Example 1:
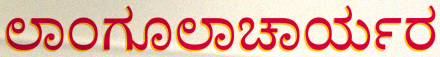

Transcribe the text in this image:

ಲಾಂಗೂಲಾಚಾರ್ಯರ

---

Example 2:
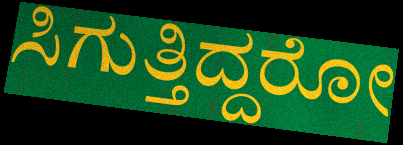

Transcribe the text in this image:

ಸಿಗುತ್ತಿದ್ದರೋ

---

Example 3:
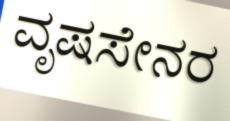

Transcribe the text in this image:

ವೃಷಸೇನರ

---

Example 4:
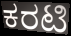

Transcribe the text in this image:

ಕರಟಿ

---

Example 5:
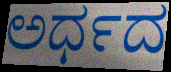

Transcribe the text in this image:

ಅರ್ಧದ